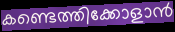
കണ്ടെത്തിക്കോളാൻ